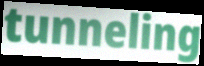
tunneling